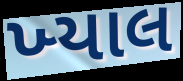
ખ્‍યાલ